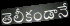
తెలీకండానే